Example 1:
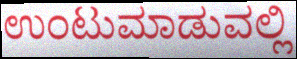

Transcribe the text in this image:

ಉಂಟುಮಾಡುವಲ್ಲಿ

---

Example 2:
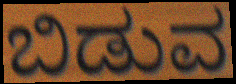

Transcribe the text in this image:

ಬಿಡುವ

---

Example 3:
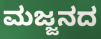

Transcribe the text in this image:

ಮಜ್ಜನದ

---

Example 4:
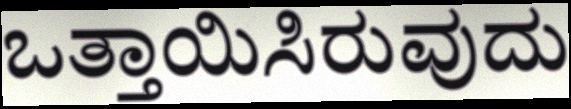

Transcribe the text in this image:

ಒತ್ತಾಯಿಸಿರುವುದು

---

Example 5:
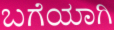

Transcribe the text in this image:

ಬಗೆಯಾಗಿ